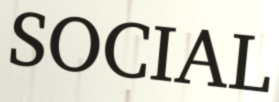
SOCIAL